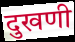
दुखणी